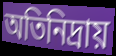
অতিনিদ্রায়